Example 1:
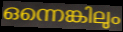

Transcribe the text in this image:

ഒന്നെങ്കിലും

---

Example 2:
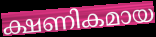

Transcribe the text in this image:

ക്ഷണികമായ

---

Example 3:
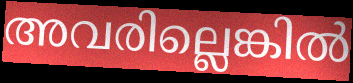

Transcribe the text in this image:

അവരില്ലെങ്കിൽ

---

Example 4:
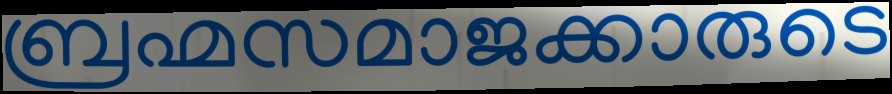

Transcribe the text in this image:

ബ്രഹ്മസമാജക്കാരുടെ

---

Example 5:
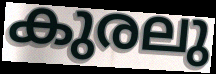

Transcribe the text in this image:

കുരലു